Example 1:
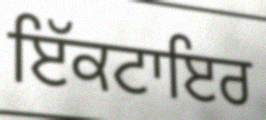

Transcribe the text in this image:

ਇੱਕਟਾਇਰ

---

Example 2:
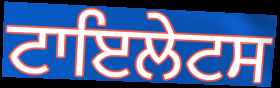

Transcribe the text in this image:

ਟਾਇਲੇਟਸ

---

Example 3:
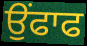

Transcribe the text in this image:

ਉੰਫਾਫ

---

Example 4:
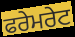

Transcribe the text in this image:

ਫਰੇਮਰੇਟ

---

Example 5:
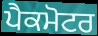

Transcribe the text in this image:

ਪੈਕਮੋਟਰ